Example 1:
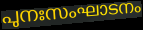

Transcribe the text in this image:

പുനഃസംഘാടനം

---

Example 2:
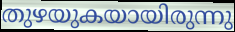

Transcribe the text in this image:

തുഴയുകയായിരുന്നു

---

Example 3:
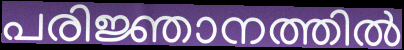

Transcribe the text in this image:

പരിജ്ഞാനത്തിൽ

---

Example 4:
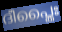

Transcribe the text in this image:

ദീപ്തൈഃ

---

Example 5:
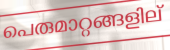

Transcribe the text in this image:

പെരുമാറ്റങ്ങളില്